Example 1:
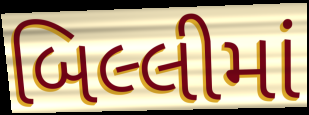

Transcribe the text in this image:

બિલ્લીમાં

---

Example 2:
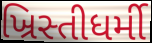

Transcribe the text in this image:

ખ્રિસ્તીધર્મી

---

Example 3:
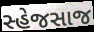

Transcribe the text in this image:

સ્હેજસાજ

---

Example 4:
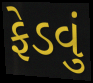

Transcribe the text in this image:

ફેડવું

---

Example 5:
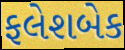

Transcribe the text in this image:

ફલેશબેક